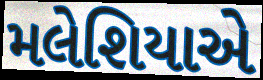
મલેશિયાએ